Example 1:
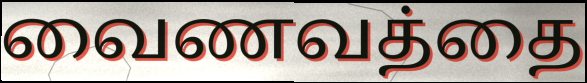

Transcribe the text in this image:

வைணவத்தை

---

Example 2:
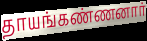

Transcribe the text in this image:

தாயங்கண்ணனார்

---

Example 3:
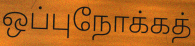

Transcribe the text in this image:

ஒப்புநோக்கத்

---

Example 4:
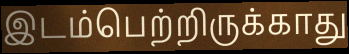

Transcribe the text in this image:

இடம்பெற்றிருக்காது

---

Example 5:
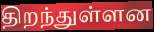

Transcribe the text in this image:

திறந்துள்ளன